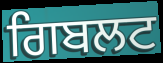
ਗਿਬਲਟ